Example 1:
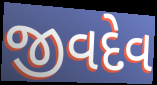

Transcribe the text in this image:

જીવદેવ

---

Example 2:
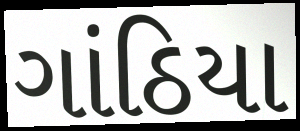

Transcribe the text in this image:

ગાંઠિયા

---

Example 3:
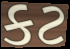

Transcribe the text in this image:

કટ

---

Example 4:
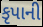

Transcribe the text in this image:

કૃપાની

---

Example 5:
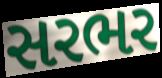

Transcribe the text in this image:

સરભર